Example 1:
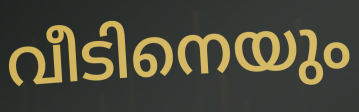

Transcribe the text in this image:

വീടിനെയും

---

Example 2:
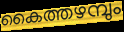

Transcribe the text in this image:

കൈത്തഴമ്പും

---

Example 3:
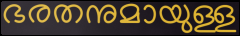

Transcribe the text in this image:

ഭരതനുമായുള്ള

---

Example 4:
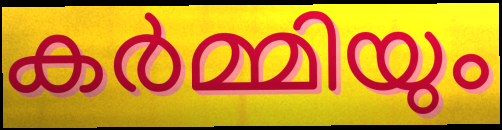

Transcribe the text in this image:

കർമ്മിയും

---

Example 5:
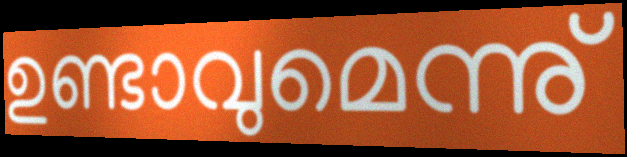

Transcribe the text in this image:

ഉണ്ടാവുമെന്നു്